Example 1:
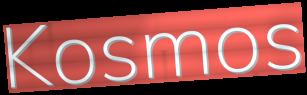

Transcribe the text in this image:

Kosmos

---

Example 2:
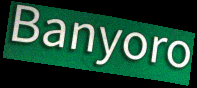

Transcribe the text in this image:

Banyoro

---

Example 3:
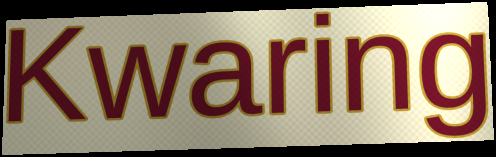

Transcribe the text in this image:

Kwaring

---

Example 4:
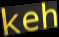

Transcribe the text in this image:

keh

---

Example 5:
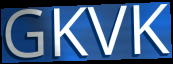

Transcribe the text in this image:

GKVK